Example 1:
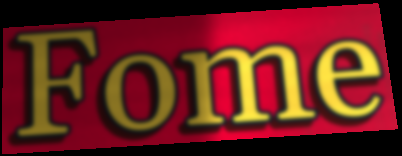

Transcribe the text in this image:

Fome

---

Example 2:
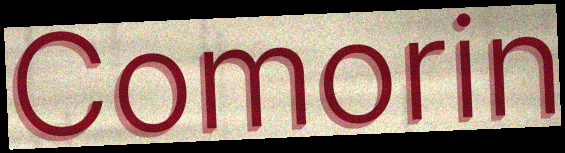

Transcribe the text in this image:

Comorin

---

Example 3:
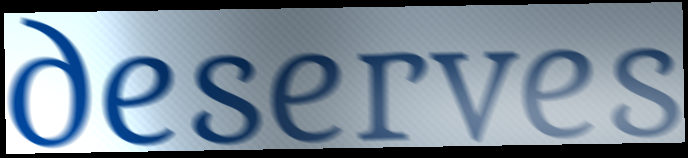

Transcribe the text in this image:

deserves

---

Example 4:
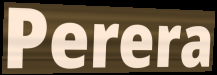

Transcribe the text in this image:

Perera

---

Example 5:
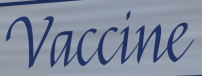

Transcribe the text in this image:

Vaccine